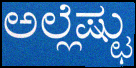
ಅಲ್ಲೆಷ್ಟು